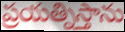
ప్రయత్నిస్తాను